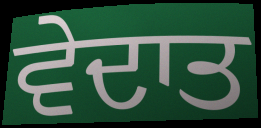
ਵੇਦਾਤ